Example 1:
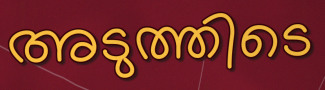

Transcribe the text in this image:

അടുത്തിടെ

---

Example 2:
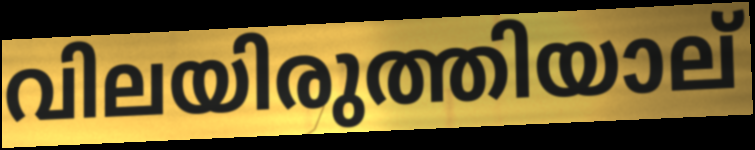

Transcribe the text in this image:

വിലയിരുത്തിയാല്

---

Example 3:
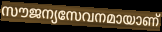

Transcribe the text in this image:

സൗജന്യസേവനമായാണ്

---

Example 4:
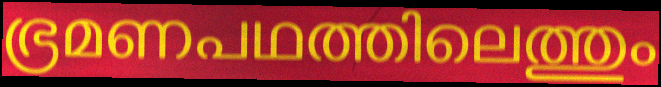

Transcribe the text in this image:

ഭ്രമണപഥത്തിലെത്തും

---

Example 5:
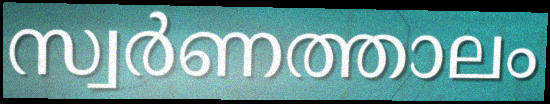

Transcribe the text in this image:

സ്വർണത്താലം